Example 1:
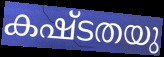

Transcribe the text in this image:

കഷ്ടതയു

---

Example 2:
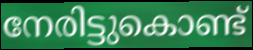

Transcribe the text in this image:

നേരിട്ടുകൊണ്ട്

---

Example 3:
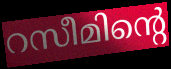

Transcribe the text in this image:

റസീമിന്റെ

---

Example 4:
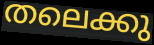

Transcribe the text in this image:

തലെക്കു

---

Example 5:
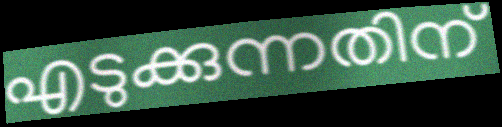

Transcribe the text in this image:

എടുക്കുന്നതിന്